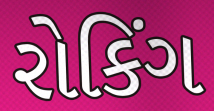
રોકિંગ